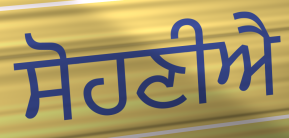
ਸੋਹਣੀਐ